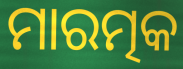
ମାରତ୍ମକ